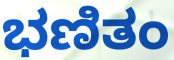
ಭಣಿತಂ